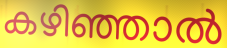
കഴിഞ്ഞാൽ